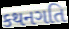
કથનગતિ